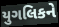
યુગલિકને